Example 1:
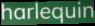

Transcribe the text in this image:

harlequin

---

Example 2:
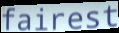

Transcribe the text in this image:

fairest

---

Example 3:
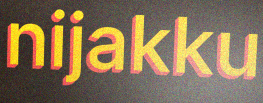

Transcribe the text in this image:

nijakku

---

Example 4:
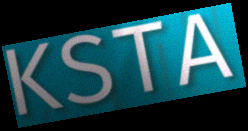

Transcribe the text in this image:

KSTA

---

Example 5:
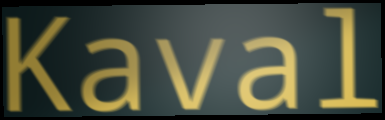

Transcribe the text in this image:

Kaval